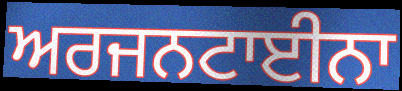
ਅਰਜਨਟਾਈਨਾ